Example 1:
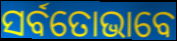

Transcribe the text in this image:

ସର୍ବତୋଭାବେ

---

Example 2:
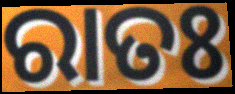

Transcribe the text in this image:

ରାତଃ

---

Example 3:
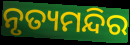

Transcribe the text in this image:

ନୃତ୍ୟମନ୍ଦିର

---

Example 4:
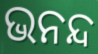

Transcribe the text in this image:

ଭନନ୍ଦ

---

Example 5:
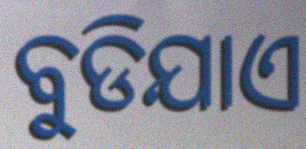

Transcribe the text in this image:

ବୁଡିଯାଏ